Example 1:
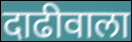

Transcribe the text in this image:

दाढीवाला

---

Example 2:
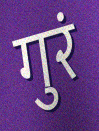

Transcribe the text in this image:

गुरं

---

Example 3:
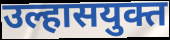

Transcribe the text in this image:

उल्हासयुक्त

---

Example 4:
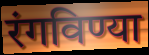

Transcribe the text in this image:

रंगविण्या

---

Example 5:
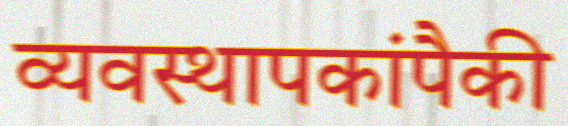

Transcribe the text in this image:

व्यवस्थापकांपैकी